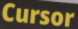
Cursor